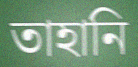
তাহানি